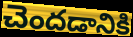
చెందడానికి